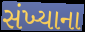
સંખ્યાના